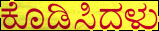
ಕೊಡಿಸಿದಳು